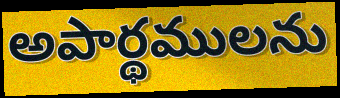
అపార్థములను